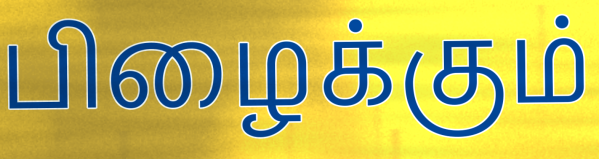
பிழைக்கும்